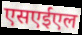
एसएईएल